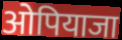
ओपियाजा